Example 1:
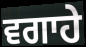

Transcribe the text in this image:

ਵਗਾਹੇ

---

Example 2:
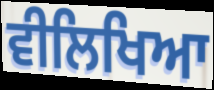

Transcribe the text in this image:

ਵੀਲਿਖਿਆ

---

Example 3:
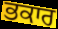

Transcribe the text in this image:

ਭਕਾਰ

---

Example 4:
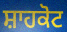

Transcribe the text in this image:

ਸ਼ਾਹਕੋਟ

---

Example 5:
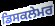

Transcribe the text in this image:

ਡਿਸਕਲੇਮਰ